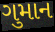
ગુમાન